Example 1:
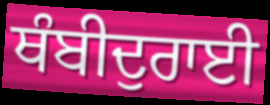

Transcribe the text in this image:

ਥੰਬੀਦੁਰਾਈ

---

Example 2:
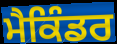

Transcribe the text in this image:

ਮੈਕਿੰਡਰ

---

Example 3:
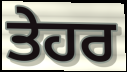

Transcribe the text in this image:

ਤੇਹਰ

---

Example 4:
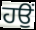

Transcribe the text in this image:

ਹਉਂ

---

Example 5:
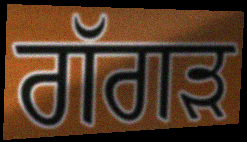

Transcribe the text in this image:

ਗੱਗੜ